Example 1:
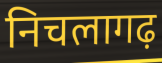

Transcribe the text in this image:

निचलागढ़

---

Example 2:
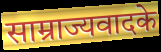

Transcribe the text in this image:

साम्राज्यवादके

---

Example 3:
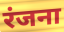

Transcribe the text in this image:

रंजना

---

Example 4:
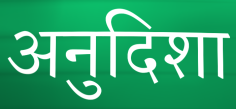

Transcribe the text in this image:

अनुदिशा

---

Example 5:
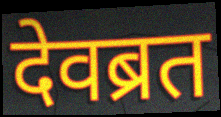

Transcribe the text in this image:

देवब्रत